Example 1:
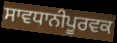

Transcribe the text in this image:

ਸਾਵਧਾਨੀਪੂਰਵਕ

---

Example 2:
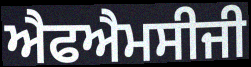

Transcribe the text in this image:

ਐਫਐਮਸੀਜੀ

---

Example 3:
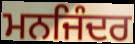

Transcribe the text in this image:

ਮਨਜਿੰਦਰ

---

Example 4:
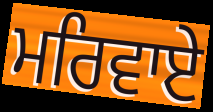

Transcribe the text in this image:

ਮਰਿਵਾਏ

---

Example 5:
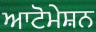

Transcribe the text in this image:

ਆਟੋਮੇਸ਼ਨ